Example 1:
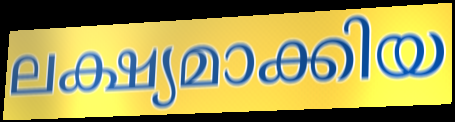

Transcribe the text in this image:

ലക്ഷ്യമാക്കിയ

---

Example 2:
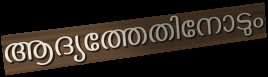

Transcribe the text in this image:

ആദ്യത്തേതിനോടും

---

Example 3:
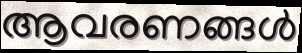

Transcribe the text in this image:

ആവരണങ്ങൾ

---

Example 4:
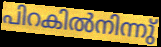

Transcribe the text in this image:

പിറകിൽനിന്നു്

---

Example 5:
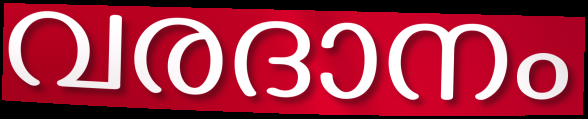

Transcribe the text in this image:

വരദാനം